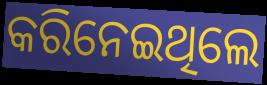
କରିନେଇଥିଲେ